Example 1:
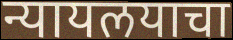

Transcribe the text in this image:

न्यायलयाचा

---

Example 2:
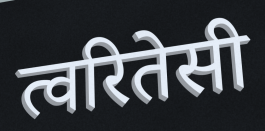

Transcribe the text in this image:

त्वरितेसी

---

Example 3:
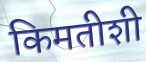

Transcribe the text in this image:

किमतीशी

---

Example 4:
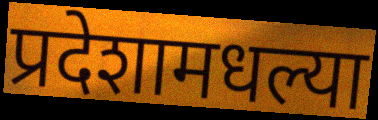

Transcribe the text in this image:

प्रदेशामधल्या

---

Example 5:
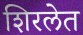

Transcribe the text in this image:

शिरलेत